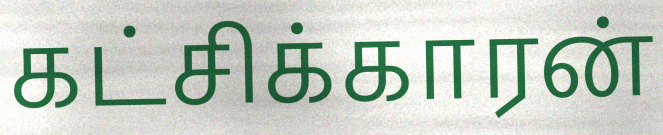
கட்சிக்காரன்